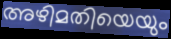
അഴിമതിയെയും